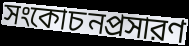
সংকোচনপ্রসারণ